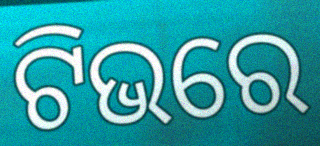
ଟିଭରେ